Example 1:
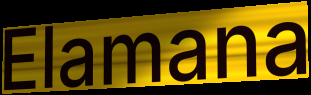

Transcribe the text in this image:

Elamana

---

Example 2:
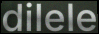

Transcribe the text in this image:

dilele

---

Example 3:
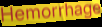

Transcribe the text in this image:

Hemorrhage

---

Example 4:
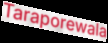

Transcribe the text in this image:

Taraporewala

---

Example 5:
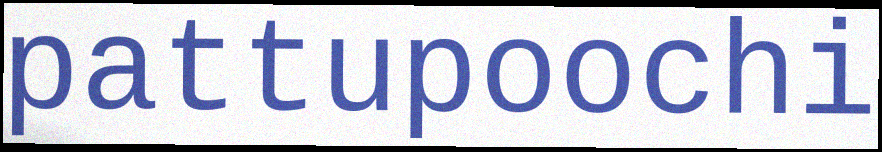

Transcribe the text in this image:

pattupoochi